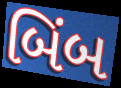
બિંબ